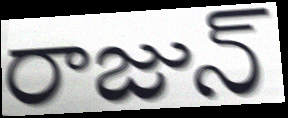
రాజున్